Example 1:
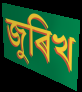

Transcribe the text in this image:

জুৰিখ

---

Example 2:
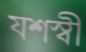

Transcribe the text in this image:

যশস্বী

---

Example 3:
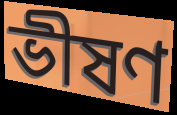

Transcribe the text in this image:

ভীষণ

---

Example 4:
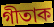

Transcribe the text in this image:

গীতাক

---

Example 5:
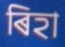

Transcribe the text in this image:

ৰিহা